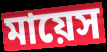
মায়েস